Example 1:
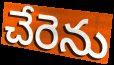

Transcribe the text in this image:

చేరెను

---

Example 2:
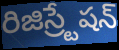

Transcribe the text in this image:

రిజిస్ర్టేషన్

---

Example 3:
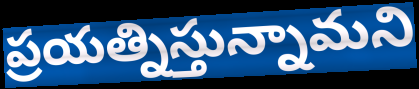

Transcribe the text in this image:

ప్రయత్నిస్తున్నామని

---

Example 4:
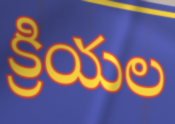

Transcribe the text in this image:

క్రియల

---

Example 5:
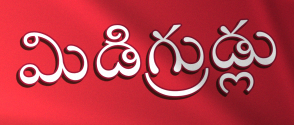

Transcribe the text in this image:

మిడిగ్రుడ్లు